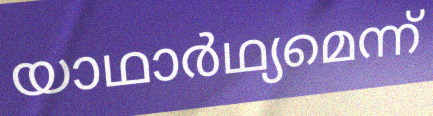
യാഥാർഥ്യമെന്ന്